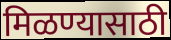
मिळण्‍यासाठी